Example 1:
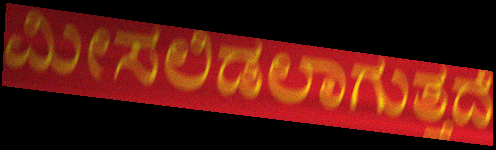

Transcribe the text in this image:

ಮೀಸಲಿಡಲಾಗುತ್ತದೆ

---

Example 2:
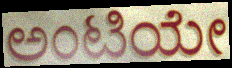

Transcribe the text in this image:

ಅಂಟಿಯೇ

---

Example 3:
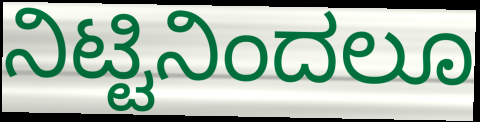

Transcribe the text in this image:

ನಿಟ್ಟಿನಿಂದಲೂ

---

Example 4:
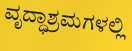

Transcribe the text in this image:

ವೃದ್ಧಾಶ್ರಮಗಳಲ್ಲಿ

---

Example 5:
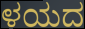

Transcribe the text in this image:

ಳಯದ